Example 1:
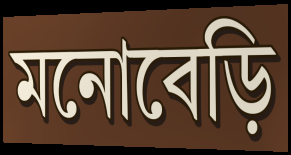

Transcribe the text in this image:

মনোবেড়ি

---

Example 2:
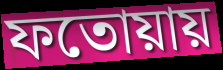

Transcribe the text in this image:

ফতোয়ায়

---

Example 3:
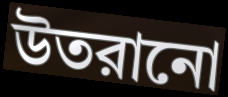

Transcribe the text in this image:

উতরানো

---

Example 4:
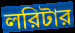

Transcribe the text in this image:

লরিটার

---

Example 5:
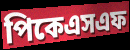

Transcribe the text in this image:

পিকেএসএফ